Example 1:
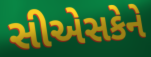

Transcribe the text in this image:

સીએસકેને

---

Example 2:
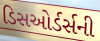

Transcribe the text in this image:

ડિસઓર્ડર્સની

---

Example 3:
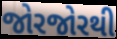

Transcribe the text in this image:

જોરજોરથી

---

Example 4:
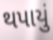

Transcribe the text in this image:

થપાયું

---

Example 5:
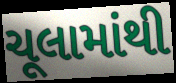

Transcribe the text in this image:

ચૂલામાંથી